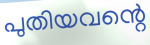
പുതിയവന്റെ